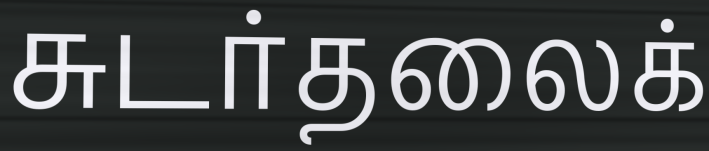
சுடர்தலைக்